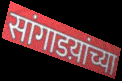
सांगाडय़ांच्या